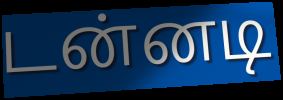
டன்னடி